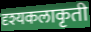
दृश्यकलाकृती